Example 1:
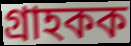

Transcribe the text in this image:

গ্ৰাহকক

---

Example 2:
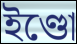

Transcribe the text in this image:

ইণ্ডো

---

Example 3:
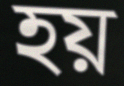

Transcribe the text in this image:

হয়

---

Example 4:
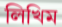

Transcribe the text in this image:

লিখিম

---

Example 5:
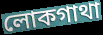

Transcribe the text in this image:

লোকগাথা